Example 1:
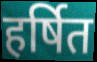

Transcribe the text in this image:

हर्षित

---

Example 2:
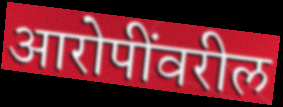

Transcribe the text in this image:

आरोपींवरील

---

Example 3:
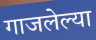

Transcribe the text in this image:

गाजलेल्या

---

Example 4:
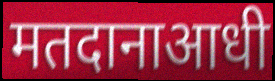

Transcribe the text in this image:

मतदानाआधी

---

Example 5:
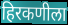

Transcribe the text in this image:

हिरकणीला